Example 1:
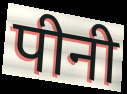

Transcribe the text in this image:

पीनी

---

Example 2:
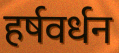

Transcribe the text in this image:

हर्षवर्धन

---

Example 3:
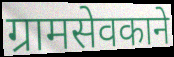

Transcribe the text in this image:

ग्रामसेवकाने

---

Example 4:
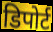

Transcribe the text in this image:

डिपोर्ट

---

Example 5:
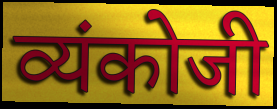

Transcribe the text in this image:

व्यंकोजी